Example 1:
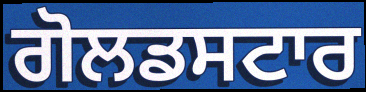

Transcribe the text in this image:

ਗੋਲਡਸਟਾਰ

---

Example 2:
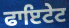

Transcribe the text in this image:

ਫਾਇਟੇਟ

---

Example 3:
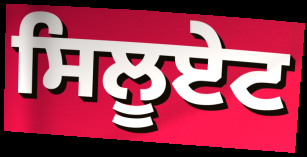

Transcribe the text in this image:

ਸਿਲੂਏਟ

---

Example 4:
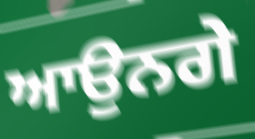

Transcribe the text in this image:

ਆਉਨਗੇ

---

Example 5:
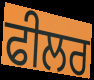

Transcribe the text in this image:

ਫੀਲਰ